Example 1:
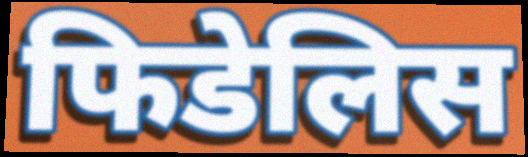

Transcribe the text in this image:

फिडेलिस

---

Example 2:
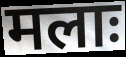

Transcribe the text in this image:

मलाः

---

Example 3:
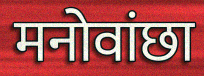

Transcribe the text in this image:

मनोवांछा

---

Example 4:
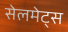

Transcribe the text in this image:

सेलमेट्स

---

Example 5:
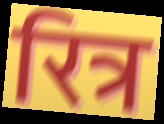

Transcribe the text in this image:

रित्र